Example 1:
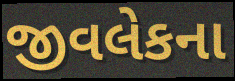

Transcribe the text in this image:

જીવલેકના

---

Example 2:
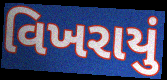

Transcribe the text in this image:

વિખરાયું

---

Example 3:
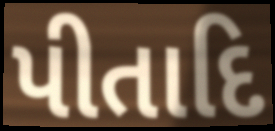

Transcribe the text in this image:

પીતાદિ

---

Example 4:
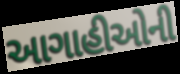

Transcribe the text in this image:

આગાહીઓની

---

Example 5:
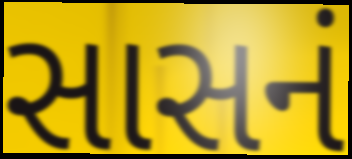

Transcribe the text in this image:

સાસનં